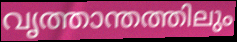
വൃത്താന്തത്തിലും